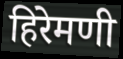
हिरेमणी